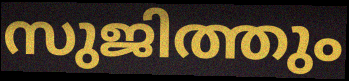
സുജിത്തും